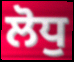
ਲੋਧੁ